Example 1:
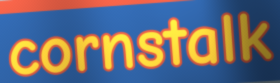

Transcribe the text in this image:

cornstalk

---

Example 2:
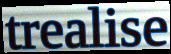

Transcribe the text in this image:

trealise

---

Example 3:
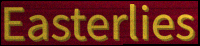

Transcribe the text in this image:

Easterlies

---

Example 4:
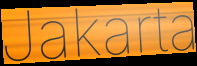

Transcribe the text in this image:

Jakarta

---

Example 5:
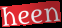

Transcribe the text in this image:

heen